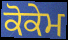
ਕੋਕੇਮ